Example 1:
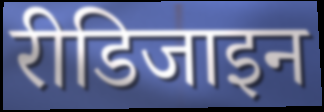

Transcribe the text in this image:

रीडिजाइन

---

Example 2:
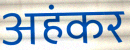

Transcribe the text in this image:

अहंकर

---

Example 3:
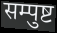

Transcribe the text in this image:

सम्पुष्ट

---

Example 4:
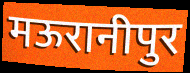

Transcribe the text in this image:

मऊरानीपुर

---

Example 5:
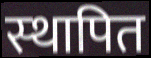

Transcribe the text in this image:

स्‍थापित